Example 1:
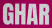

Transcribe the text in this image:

GHAR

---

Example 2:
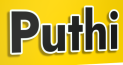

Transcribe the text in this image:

Puthi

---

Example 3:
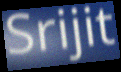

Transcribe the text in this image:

Srijit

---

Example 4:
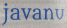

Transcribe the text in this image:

javanu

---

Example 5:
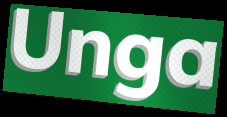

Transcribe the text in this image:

Unga